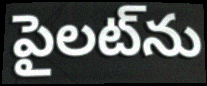
పైలట్‌ను